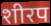
शीरप